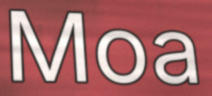
Moa